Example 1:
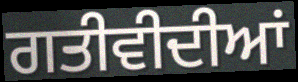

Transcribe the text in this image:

ਗਤੀਵੀਦੀਆਂ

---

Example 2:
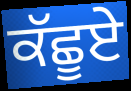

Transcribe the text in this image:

ਕੱਛੂਏ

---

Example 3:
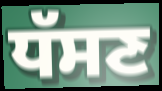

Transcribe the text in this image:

ਧੱਸਣ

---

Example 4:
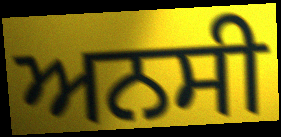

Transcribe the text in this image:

ਅਨਸੀ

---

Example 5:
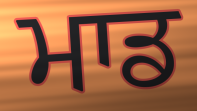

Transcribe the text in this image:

ਮਾਡ